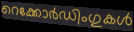
റെക്കോർഡിംഗുകൾ